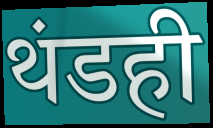
थंडही